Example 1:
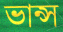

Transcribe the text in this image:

ভান্স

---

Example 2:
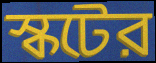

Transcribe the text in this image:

স্কটের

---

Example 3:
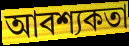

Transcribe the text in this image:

আবশ্যকতা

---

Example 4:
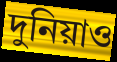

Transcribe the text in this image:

দুনিয়াও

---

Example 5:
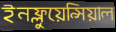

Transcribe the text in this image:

ইনফ্লুয়েন্সিয়াল